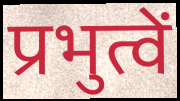
प्रभुत्वें